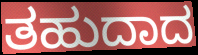
ತಹುದಾದ